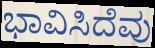
ಭಾವಿಸಿದೆವು